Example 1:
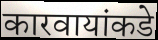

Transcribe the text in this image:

कारवायांकडे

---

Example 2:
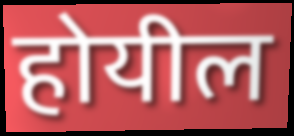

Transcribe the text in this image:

होयील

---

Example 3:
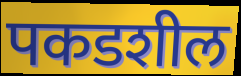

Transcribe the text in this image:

पकडशील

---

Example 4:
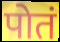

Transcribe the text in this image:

पोतं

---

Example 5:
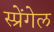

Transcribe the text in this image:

स्प्रेंगेल